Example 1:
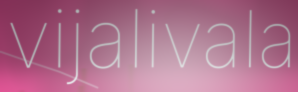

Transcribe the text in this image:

vijalivala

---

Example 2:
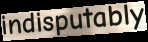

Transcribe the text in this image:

indisputably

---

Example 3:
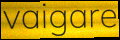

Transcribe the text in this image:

vaigare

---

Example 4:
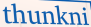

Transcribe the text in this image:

thunkni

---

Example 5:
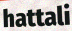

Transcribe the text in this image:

hattali